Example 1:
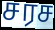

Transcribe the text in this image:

சரச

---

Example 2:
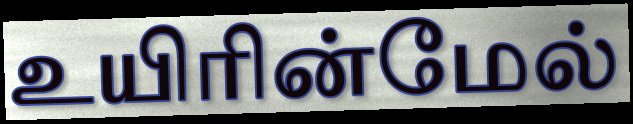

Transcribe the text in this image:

உயிரின்மேல்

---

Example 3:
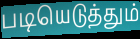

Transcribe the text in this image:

படியெடுத்தும்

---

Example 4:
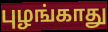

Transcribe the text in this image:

புழங்காது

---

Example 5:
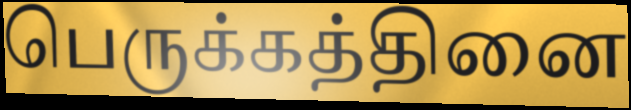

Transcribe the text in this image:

பெருக்கத்தினை